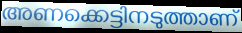
അണക്കെട്ടിനടുത്താണ്